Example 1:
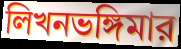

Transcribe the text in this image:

লিখনভঙ্গিমার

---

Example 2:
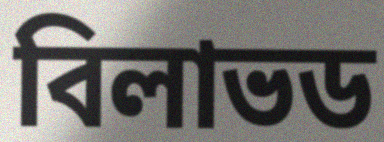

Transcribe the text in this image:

বিলাভড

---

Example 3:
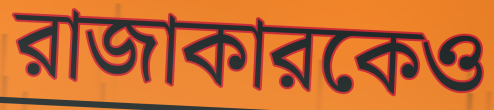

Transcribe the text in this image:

রাজাকারকেও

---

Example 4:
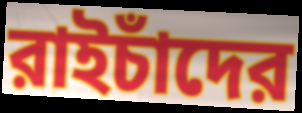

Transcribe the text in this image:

রাইচাঁদের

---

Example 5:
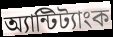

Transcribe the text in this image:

অ্যান্টিট্যাংক